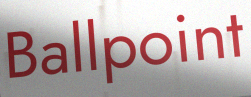
Ballpoint